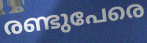
രണ്ടുപേരെ